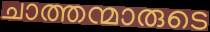
ചാത്തന്മാരുടെ